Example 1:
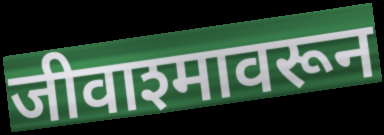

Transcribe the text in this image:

जीवाश्मावरून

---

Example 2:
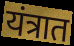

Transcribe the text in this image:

यंत्रात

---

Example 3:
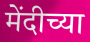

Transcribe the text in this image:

मेंदीच्या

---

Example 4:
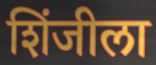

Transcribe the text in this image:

शिंजीला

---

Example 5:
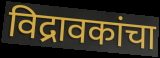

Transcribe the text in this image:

विद्रावकांचा